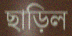
ছাড়িল